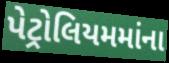
પેટ્રોલિયમમાંના